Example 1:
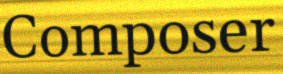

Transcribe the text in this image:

Composer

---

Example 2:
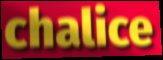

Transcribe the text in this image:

chalice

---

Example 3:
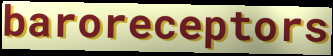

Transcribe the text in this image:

baroreceptors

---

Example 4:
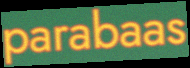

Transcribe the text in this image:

parabaas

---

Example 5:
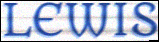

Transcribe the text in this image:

LEWIS